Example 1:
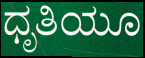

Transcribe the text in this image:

ಧೃತಿಯೂ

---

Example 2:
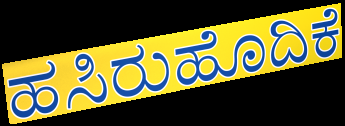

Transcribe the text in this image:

ಹಸಿರುಹೊದಿಕೆ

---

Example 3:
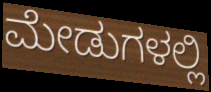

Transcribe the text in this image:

ಮೇಡುಗಳಲ್ಲಿ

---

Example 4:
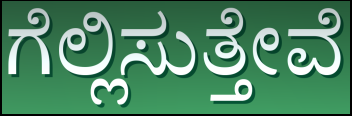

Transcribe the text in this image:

ಗೆಲ್ಲಿಸುತ್ತೇವೆ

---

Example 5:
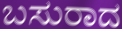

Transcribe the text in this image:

ಬಸುರಾದ